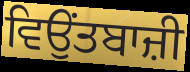
ਵਿਉਂਤਬਾਜ਼ੀ